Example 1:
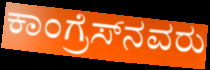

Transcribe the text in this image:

ಕಾಂಗ್ರೆಸ್‌ನವರು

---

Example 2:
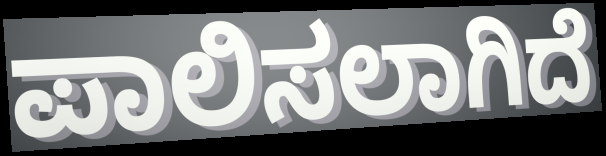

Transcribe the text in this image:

ಪಾಲಿಸಲಾಗಿದೆ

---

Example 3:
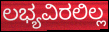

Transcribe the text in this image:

ಲಭ್ಯವಿರಲಿಲ್ಲ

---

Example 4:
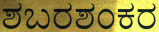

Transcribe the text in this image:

ಶಬರಶಂಕರ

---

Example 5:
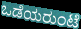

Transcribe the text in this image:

ಒಡೆಯರುಂಟೆ